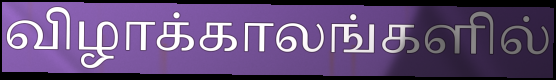
விழாக்காலங்களில்